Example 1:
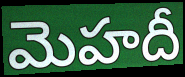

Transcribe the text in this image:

మెహదీ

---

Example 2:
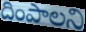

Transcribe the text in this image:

దింపాలని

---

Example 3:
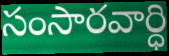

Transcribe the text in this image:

సంసారవార్ధి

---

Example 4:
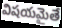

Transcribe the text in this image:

విషయమైతే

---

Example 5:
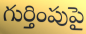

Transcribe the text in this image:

గుర్తింపుపై